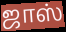
ஜாஸ்